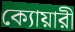
ক্যোয়ারী